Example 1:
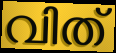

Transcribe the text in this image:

വിത്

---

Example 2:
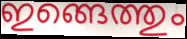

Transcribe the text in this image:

ഇങ്ങെത്തും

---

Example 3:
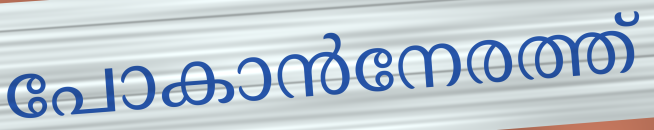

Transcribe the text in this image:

പോകാൻനേരത്ത്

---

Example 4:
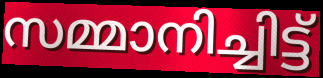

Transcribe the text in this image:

സമ്മാനിച്ചിട്ട്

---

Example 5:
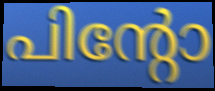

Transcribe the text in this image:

പിന്റോ